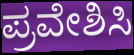
ಪ್ರವೇಶಿಸಿ